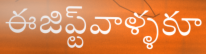
ఈజిప్ట్‌వాళ్ళకూ